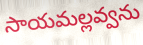
సాయమల్లవ్వను